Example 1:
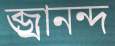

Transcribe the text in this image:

ব্জ্রানন্দ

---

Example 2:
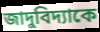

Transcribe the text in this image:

জাদুবিদ্যাকে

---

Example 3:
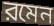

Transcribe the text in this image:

রমেন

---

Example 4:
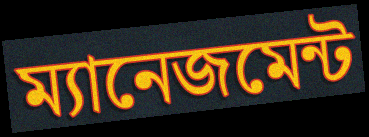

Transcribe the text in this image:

ম্যানেজমেন্ট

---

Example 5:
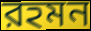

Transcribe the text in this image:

রহমন